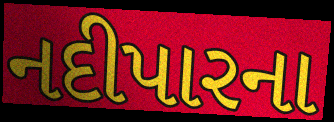
નદીપારના